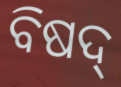
ବିଷଦ୍